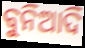
ବୁନିଆଦି